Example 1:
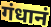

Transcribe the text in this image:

गंधानं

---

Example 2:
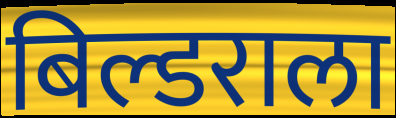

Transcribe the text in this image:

बिल्डराला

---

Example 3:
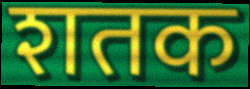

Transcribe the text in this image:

शतक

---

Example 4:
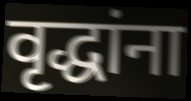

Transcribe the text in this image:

वृद्धांना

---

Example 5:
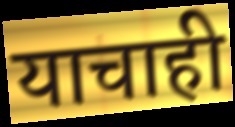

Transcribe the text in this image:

याचाही